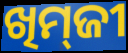
ଖିମ୍‌ଜୀ